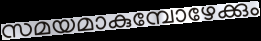
സമയമാകുമ്പോഴേക്കും